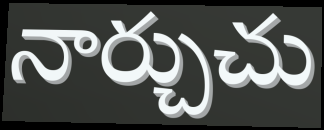
నార్చుచు